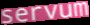
servum